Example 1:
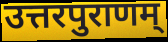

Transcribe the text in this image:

उत्तरपुराणम्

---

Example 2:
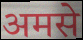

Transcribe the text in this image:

अमसे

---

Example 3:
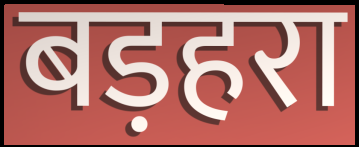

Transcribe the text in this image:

बड़हरा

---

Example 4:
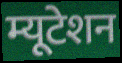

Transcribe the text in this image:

म्यूटेशन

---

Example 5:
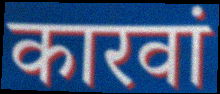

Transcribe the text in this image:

कारवां